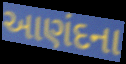
આણંદના